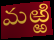
మఱ్ఱి